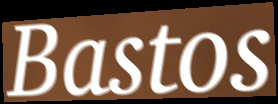
Bastos